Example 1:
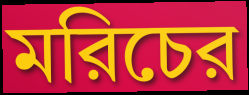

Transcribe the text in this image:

মরিচের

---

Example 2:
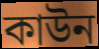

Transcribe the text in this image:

কাউন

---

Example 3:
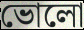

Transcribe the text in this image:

ভোলো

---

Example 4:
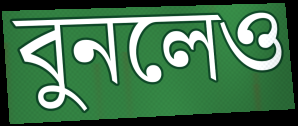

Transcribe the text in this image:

বুনলেও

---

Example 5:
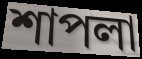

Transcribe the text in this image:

শাপলা